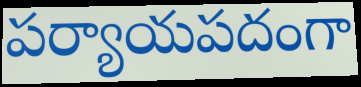
పర్యాయపదంగా